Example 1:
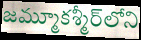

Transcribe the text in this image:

జమ్మూకశ్మీర్‌లోని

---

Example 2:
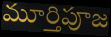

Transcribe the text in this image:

మూర్తిపూజ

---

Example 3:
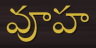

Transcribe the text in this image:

వూహ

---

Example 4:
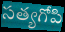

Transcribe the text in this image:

సత్యగోపి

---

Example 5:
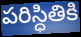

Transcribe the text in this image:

పరిస్ధితికి